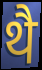
थै